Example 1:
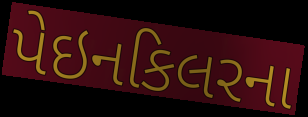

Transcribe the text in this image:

પેઇનકિલરના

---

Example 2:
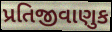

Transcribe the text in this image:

પ્રતિજીવાણુક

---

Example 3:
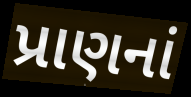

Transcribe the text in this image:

પ્રાણનાં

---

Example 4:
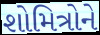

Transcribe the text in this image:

શોમિત્રોને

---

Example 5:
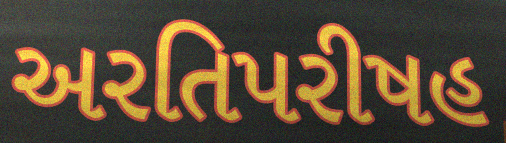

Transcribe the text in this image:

અરતિપરીષહ